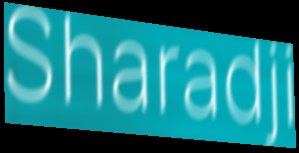
Sharadji